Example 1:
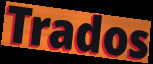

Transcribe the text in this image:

Trados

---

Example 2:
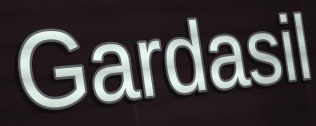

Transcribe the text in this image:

Gardasil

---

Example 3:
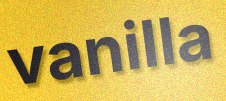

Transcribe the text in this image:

vanilla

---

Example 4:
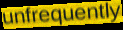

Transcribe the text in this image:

unfrequently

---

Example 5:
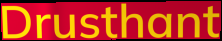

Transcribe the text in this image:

Drusthant